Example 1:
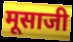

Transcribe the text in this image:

मूसाजी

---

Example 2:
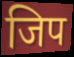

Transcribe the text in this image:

जिप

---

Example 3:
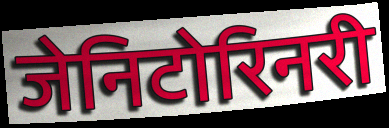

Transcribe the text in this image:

जेनिटोरिनरी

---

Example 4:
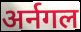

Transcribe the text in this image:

अर्नगल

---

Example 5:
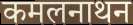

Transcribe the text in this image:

कमलनाथन